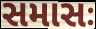
સમાસઃ